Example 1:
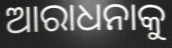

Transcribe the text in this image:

ଆରାଧନାକୁ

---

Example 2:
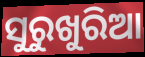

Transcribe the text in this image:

ସୁରୁଖୁରିଆ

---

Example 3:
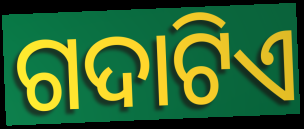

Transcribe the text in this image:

ଗଦାଟିଏ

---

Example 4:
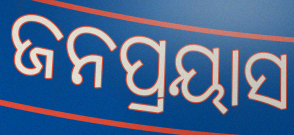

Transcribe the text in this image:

ଜନପ୍ରୟାସ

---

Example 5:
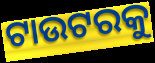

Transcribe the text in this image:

ଟାଉଟରକୁ